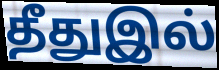
தீதுஇல்